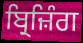
ਬ੍ਰਿਜ਼ਿੰਗ